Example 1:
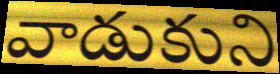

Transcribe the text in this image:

వాడుకుని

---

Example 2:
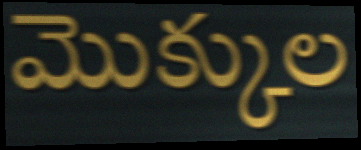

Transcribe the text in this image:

మొక్కుల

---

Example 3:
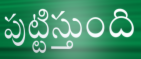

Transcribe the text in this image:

పుట్టిస్తుంది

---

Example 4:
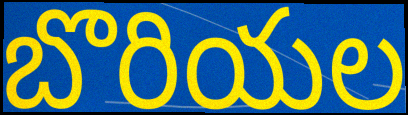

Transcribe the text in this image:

బొరియల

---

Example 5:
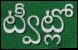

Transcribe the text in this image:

ట్వీట్లో